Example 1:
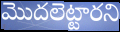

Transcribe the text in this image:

మొదలెట్టారని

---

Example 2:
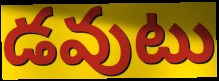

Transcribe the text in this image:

డవుటు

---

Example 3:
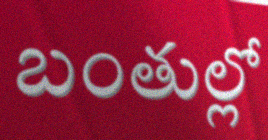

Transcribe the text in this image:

బంతుల్లో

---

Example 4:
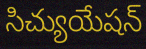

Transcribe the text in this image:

సిచ్యుయేషన్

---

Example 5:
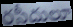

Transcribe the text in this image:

రసీదులూ